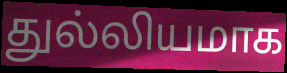
துல்லியமாக